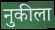
नुकीला